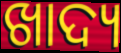
ଖାଦ୍ୟ